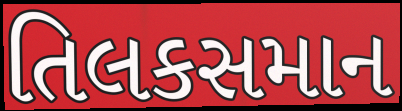
તિલકસમાન